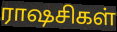
ராஷசிகள்